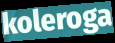
koleroga